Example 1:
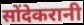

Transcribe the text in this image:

सोंदेकरानी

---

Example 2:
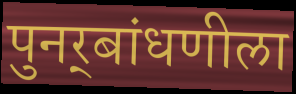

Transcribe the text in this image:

पुनर्बांधणीला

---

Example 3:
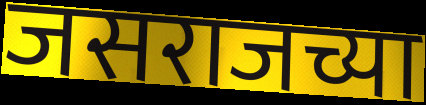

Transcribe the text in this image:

जसराजच्या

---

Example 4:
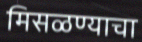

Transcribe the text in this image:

मिसळण्याचा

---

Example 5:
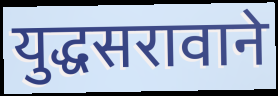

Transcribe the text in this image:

युद्धसरावाने